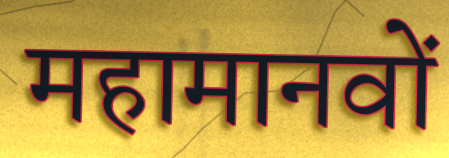
महामानवों